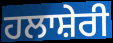
ਹਲਾਸ਼ੇਰੀ